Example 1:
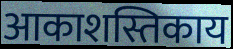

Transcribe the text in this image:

आकाशस्तिकाय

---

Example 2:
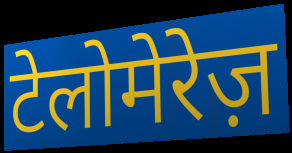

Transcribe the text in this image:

टेलोमेरेज़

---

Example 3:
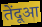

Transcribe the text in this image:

तेंदूआ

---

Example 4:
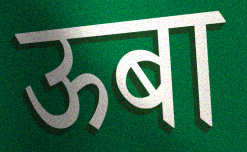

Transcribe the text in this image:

ऊबा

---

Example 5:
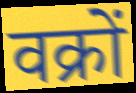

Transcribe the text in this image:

वक्रों